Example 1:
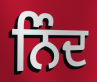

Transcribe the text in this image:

ਨਿੰਦ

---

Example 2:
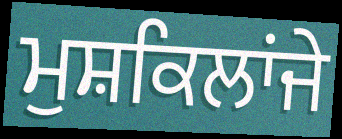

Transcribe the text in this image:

ਮੁਸ਼ਕਿਲਾਂਜੇ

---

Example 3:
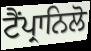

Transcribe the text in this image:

ਟੈਂਪ੍ਰਾਨਿਲੋ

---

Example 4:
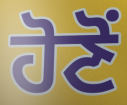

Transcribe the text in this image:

ਹੋਣੋਂ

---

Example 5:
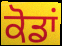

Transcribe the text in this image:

ਕੋਡਾਂ